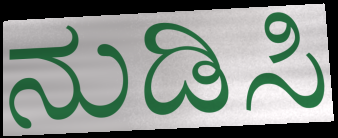
ನುಡಿಸಿ